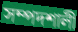
সম্পদশালী